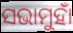
ସଭାମୁହାଁ